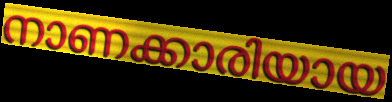
നാണക്കാരിയായ